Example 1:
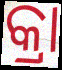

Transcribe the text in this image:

କ୍ରା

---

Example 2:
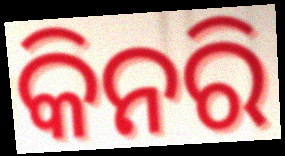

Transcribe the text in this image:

କିନରି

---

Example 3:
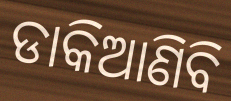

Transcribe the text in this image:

ଡାକିଆଣିବି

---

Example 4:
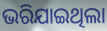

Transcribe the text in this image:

ଭରିଯାଇଥିଲା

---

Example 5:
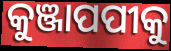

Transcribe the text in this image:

କୁଞ୍ଜାପପୀକୁ